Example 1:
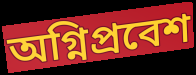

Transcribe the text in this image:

অগ্নিপ্রবেশ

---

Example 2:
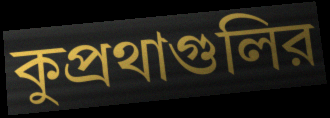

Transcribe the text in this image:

কুপ্রথাগুলির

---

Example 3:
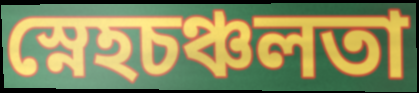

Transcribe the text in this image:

স্নেহচঞ্চলতা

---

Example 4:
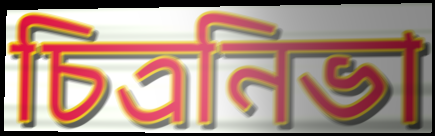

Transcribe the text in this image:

চিত্রনিভা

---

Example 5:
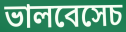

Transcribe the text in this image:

ভালবেসেচ